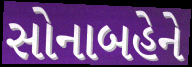
સોનાબહેને